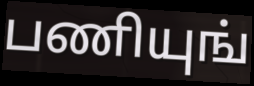
பணியுங்